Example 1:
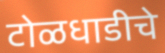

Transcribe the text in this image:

टोळधाडीचे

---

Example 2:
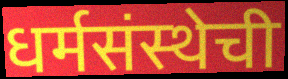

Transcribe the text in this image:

धर्मसंस्थेची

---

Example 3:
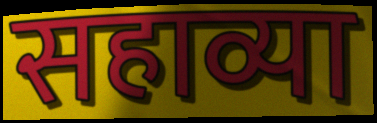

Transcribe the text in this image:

सहाव्या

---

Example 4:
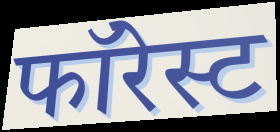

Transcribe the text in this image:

फॉरेस्ट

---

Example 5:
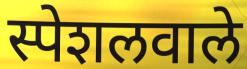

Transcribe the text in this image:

स्पेशलवाले